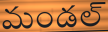
మండల్